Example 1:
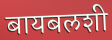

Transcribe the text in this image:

बायबलशी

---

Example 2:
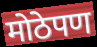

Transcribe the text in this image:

मोठेपण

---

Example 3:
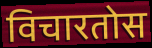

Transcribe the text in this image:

विचारतोस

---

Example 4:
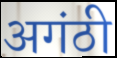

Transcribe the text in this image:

अगंठी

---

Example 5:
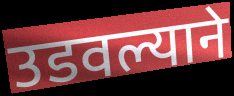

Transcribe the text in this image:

उडवल्याने